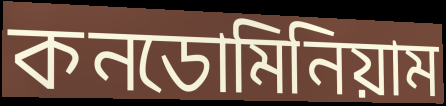
কনডোমিনিয়াম